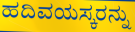
ಹದಿವಯಸ್ಕರನ್ನು